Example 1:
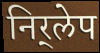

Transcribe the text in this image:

निर्लेप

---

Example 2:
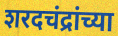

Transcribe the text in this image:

शरदचंद्रांच्या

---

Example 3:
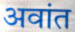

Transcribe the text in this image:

अवांत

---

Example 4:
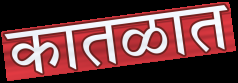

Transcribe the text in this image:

कातळात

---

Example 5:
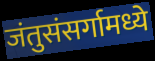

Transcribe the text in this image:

जंतुसंसर्गामध्ये